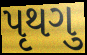
પૃથગુ